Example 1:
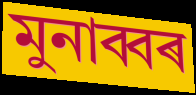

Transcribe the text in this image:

মুনাব্বৰ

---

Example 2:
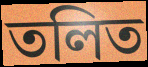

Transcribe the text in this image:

তলিত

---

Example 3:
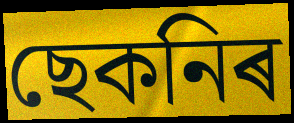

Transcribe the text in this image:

ছেকনিৰ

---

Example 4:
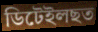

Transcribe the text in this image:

ডিটেইলছত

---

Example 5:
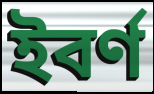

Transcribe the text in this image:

ইবৰ্ণ